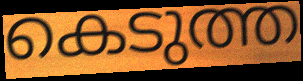
കെടുത്ത